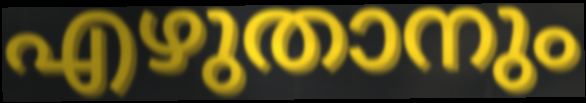
എഴുതാനും